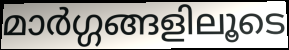
മാർഗ്ഗങ്ങളിലൂടെ